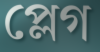
প্লেগ